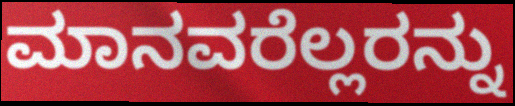
ಮಾನವರೆಲ್ಲರನ್ನು